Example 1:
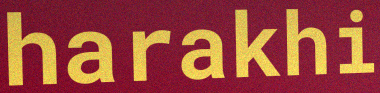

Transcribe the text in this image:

harakhi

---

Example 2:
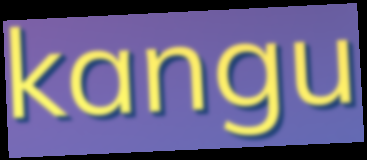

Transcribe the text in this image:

kangu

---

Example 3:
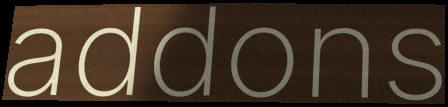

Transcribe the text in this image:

addons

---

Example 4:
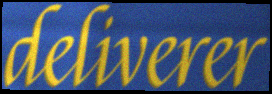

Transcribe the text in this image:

deliverer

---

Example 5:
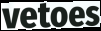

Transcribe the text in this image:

vetoes